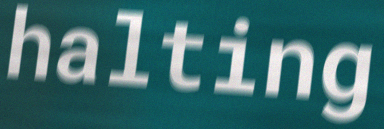
halting